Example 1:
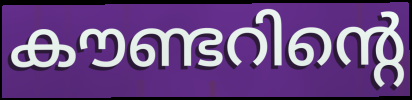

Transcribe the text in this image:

കൗണ്ടറിന്റെ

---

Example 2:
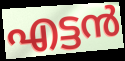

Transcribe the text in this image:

എട്ടൻ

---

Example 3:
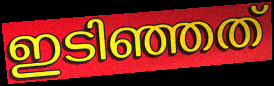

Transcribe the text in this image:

ഇടിഞ്ഞത്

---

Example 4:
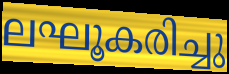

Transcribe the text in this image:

ലഘൂകരിച്ചു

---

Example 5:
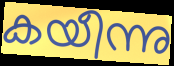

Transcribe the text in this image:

കയീന്നു